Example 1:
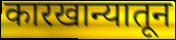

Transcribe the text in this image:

कारखान्यातून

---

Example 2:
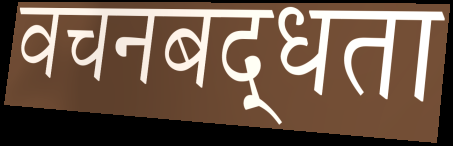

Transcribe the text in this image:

वचनबद्धता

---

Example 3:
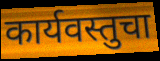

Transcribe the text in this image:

कार्यवस्तुचा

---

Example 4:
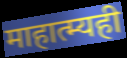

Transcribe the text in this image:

माहात्म्यही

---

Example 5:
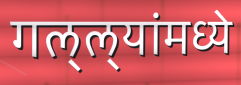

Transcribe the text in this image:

गल्ल्यांमध्ये